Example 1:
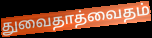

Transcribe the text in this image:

துவைதாத்வைதம்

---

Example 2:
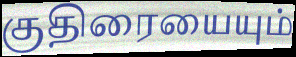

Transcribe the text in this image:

குதிரையையும்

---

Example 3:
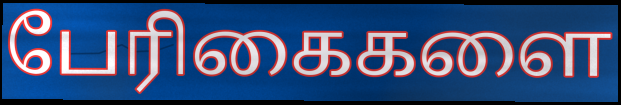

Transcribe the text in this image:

பேரிகைகளை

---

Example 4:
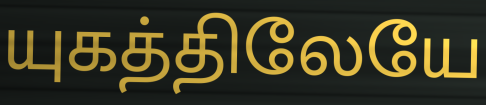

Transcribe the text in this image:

யுகத்திலேயே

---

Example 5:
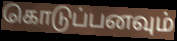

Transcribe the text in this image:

கொடுப்பனவும்